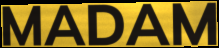
MADAM